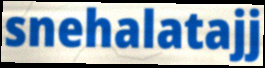
snehalatajj